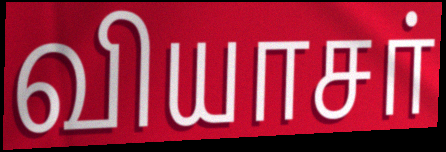
வியாசர்